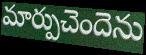
మార్పుచెందెను